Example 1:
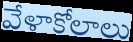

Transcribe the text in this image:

వేళాకోలాలు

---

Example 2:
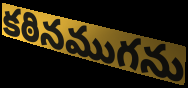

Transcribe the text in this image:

కఠినముగను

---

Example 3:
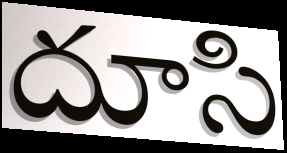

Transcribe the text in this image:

దూసి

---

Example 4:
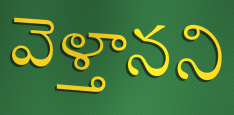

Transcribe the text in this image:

వెళ్తానని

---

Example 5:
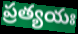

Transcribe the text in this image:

ప్రత్యయః